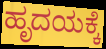
ಹೃದಯಕ್ಕೆ